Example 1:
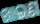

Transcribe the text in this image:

ଖାଇଣ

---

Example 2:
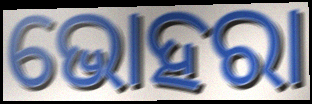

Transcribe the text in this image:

ଭୋହରା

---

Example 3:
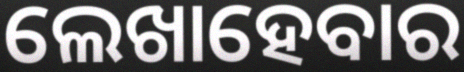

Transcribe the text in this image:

ଲେଖାହେବାର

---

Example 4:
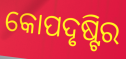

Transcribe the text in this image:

କୋପଦୃଷ୍ଟିର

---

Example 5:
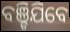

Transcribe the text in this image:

ବଞ୍ଚିଯିବେ